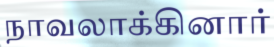
நாவலாக்கினார்